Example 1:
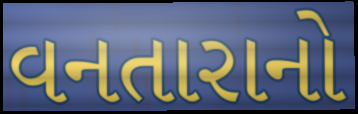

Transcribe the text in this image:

વનતારાનો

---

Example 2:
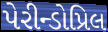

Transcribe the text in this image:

પેરીન્ડોપ્રિલ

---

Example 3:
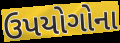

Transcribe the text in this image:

ઉપયોગોના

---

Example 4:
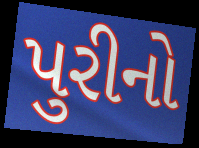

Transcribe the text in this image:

પુરીનો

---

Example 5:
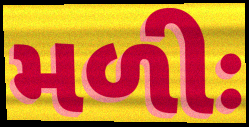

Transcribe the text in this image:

મળીઃ